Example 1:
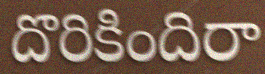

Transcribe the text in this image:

దొరికిందిరా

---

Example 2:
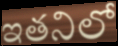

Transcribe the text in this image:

ఇతనిలో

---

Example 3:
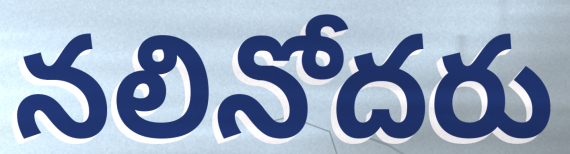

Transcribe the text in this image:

నలినోదరు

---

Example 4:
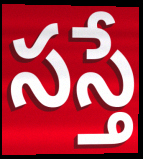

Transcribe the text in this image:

సస్తే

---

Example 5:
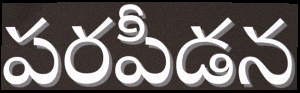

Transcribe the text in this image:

పరపీడన